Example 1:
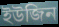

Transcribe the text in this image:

ইউজিন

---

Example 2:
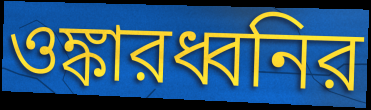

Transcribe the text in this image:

ওঙ্কারধ্বনির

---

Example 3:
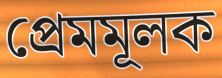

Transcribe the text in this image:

প্রেমমূলক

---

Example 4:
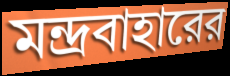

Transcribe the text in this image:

মন্দ্রবাহারের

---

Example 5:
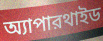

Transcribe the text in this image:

অ্যাপারথাইড